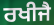
ਰਖੀਜੈ